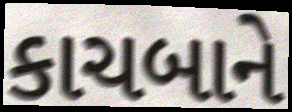
કાચબાને